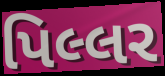
પિલ્લર